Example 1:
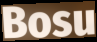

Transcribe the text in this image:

Bosu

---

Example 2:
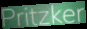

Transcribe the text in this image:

Pritzker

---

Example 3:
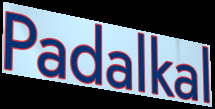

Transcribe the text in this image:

Padalkal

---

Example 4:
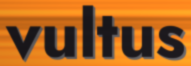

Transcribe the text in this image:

vultus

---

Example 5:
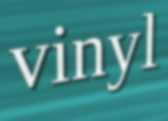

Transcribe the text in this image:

vinyl